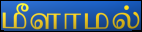
மீளாமல்